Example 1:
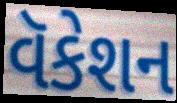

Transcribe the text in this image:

વૅકેશન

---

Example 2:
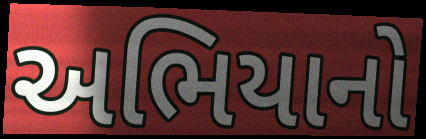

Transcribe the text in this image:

અભિયાનો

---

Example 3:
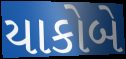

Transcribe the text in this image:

યાકોબે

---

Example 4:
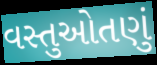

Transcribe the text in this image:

વસ્તુઓતણું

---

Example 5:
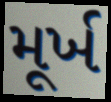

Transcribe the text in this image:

મૂર્ખ